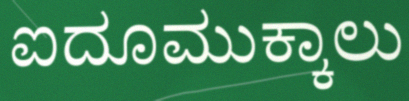
ಐದೂಮುಕ್ಕಾಲು